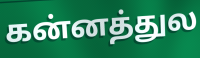
கன்னத்துல